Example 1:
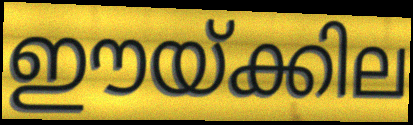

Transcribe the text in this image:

ഈയ്ക്കില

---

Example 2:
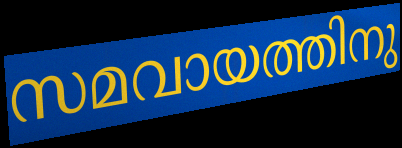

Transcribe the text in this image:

സമവായത്തിനു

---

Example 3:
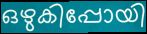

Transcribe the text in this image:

ഒഴുകിപ്പോയി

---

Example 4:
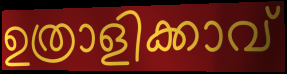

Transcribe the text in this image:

ഉത്രാളിക്കാവ്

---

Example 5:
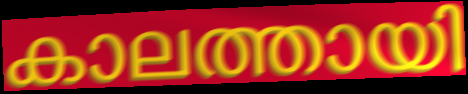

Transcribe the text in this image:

കാലത്തായി